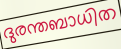
ദുരന്തബാധിത